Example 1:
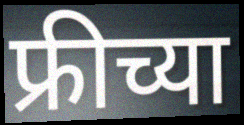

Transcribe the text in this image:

फ्रीच्या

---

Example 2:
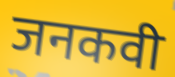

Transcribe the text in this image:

जनकवी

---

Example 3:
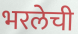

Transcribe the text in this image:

भरलेची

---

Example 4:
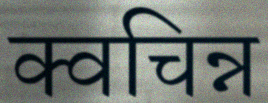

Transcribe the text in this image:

क्वचिन्न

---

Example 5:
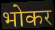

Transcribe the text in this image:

भोकर